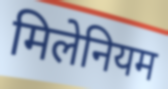
मिलेनियम